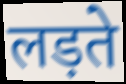
लड़ते